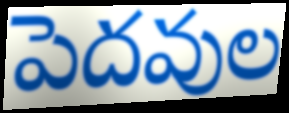
పెదవుల